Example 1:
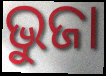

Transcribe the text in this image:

ଭୁଜା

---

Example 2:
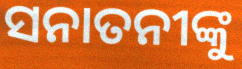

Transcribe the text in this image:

ସନାତନୀଙ୍କୁ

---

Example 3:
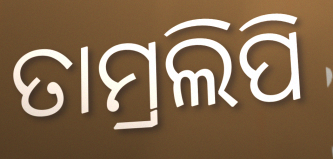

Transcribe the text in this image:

ତାମ୍ରଲିପି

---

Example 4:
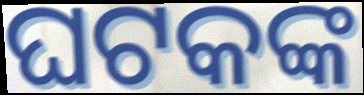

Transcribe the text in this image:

ଘଟକଙ୍କ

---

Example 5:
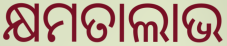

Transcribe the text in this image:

କ୍ଷମତାଲାଭ